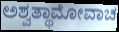
ಅಶ್ವತ್ಥಾಮೋವಾಚ